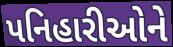
પનિહારીઓને